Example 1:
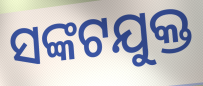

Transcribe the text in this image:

ସଙ୍କଟଯୁକ୍ତ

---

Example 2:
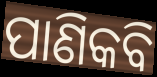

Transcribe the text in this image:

ପାଣିକବି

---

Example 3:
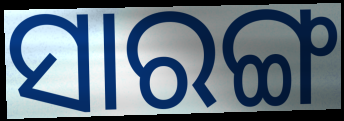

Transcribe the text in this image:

ସାରଙ୍ଗ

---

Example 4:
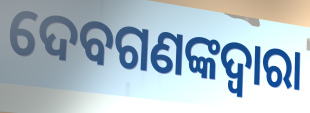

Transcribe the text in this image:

ଦେବଗଣଙ୍କଦ୍ୱାରା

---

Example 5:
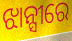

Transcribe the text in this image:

ଝାନ୍ସୀରେ